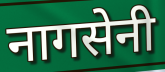
नागसेनी